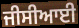
ਜੀਸੀਆਈ